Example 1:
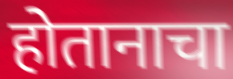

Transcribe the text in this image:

होतानाचा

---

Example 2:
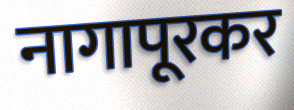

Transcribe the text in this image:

नागापूरकर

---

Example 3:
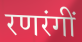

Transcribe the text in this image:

रणरंगीं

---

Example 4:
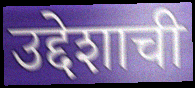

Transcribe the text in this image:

उद्देशाची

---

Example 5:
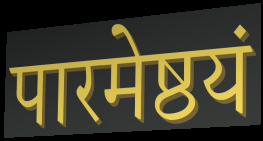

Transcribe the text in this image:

पारमेष्ठयं